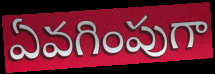
ఏవగింపుగా